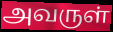
அவருள்